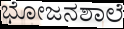
ಭೋಜನಶಾಲೆ